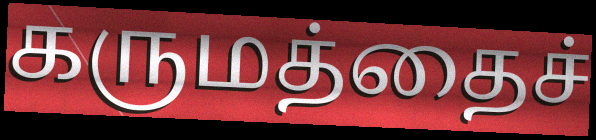
கருமத்தைச்